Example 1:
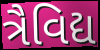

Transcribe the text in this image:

ત્રૈવિદ્ય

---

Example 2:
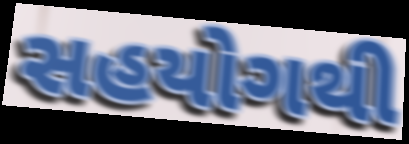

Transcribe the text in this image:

સહયોગથી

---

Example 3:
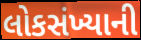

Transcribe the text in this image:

લોકસંખ્યાની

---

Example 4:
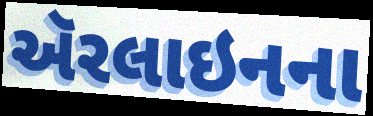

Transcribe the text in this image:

ઍરલાઇનના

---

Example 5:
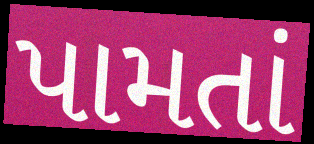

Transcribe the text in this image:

પામતાં